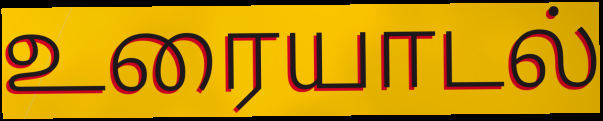
உரையாடல்